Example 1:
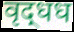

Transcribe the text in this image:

वृद्धध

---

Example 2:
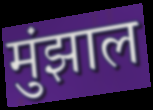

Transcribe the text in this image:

मुंझाल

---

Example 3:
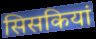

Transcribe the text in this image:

सिसकियां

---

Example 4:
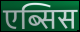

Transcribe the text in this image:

एब्सिस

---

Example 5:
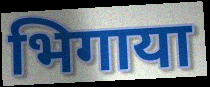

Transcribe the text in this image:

भिगाया